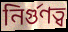
নির্গুণত্ব